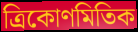
ত্ৰিকোণমিতিক